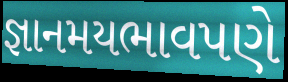
જ્ઞાનમયભાવપણે